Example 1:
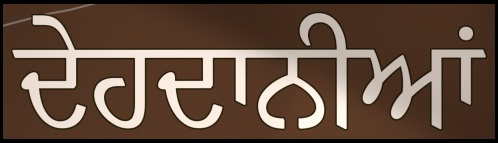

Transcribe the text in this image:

ਦੇਹਦਾਨੀਆਂ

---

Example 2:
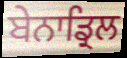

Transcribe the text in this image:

ਬੇਨਾਡ੍ਰਿਲ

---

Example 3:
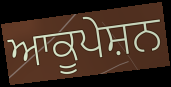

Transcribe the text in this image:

ਆਕੂਪੇਸ਼ਨ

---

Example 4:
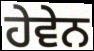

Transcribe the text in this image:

ਹੇਵੇਨ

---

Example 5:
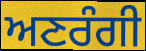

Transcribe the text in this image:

ਅਣਰੰਗੀ